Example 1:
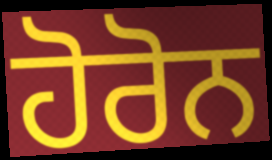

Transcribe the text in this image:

ਹੋਰੋਨ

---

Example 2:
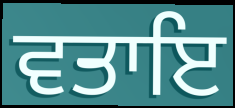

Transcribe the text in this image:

ਵਤਾਇ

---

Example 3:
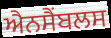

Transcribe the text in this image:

ਐਨਸੈਂਬਲਸ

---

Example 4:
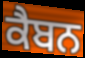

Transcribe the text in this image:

ਕੈਬਨ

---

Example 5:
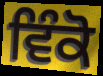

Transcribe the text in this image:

ਵਿੰਕੋ